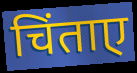
चिंताए